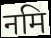
नमि